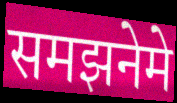
समझनेमे